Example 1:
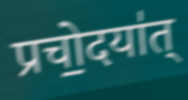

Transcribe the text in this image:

प्रचो॒दया॑त्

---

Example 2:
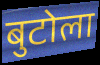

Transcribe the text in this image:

बुटोला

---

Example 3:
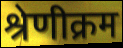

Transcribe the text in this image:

श्रेणीक्रम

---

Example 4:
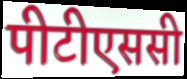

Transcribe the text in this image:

पीटीएससी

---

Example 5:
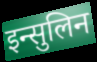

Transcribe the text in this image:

इन्सुलिन